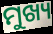
ମୁଖ୍ୟ